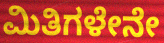
ಮಿತಿಗಳೇನೇ